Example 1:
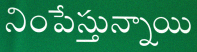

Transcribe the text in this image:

నింపేస్తున్నాయి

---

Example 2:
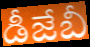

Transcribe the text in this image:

డీజేబీ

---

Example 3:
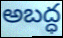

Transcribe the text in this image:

అబద్ధ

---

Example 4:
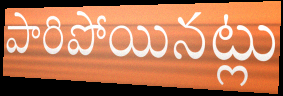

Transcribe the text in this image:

పారిపోయినట్లు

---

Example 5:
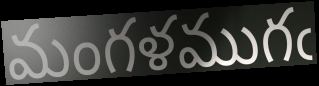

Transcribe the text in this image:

మంగళముగఁ